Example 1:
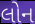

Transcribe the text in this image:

લોન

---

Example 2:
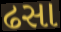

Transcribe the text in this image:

ઢસા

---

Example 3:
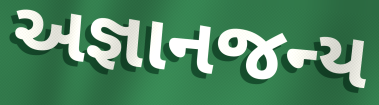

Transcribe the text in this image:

અજ્ઞાનજન્ય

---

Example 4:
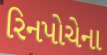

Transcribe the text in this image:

રિનપોચેના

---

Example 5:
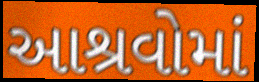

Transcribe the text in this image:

આશ્રવોમાં